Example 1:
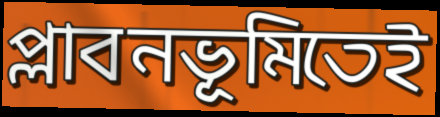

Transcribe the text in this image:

প্লাবনভূমিতেই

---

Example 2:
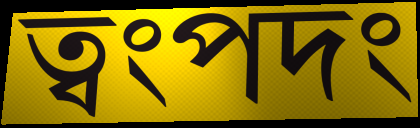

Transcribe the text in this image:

ত্বংপদং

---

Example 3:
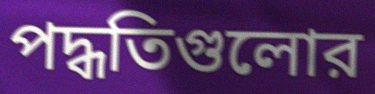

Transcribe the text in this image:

পদ্ধতিগুলোর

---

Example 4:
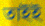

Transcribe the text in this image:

তাইই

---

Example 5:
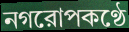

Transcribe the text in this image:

নগরোপকণ্ঠে